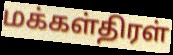
மக்கள்திரள்